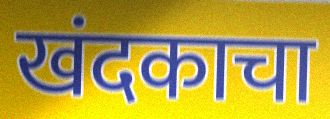
खंदकाचा